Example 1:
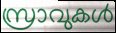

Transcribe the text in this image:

സ്രാവുകൾ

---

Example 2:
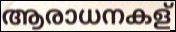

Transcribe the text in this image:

ആരാധനകള്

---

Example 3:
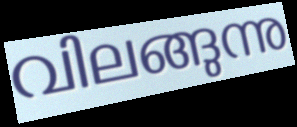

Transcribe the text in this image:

വിലങ്ങുന്നു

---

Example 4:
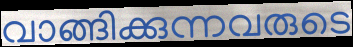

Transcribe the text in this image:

വാങ്ങിക്കുന്നവരുടെ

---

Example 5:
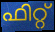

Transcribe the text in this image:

ഫിറ്റ്